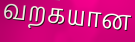
வறகயான